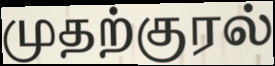
முதற்குரல்